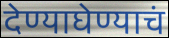
देण्याघेण्याचं